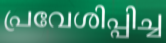
പ്രവേശിപ്പിച്ച